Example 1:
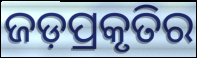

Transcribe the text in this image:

ଜଡ଼ପ୍ରକୃତିର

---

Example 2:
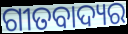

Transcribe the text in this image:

ଗୀତବାଦ୍ୟର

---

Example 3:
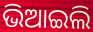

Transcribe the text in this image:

ଭିଆଇଲି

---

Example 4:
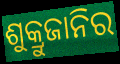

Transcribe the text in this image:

ଶୁକ୍ରୁଜାନିର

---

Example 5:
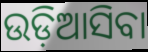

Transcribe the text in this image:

ଉଡ଼ିଆସିବା